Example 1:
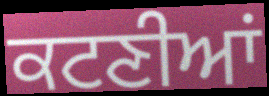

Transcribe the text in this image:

ਕਟਣੀਆਂ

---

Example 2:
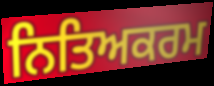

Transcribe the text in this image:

ਨਿਤਿਅਕਰਮ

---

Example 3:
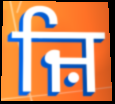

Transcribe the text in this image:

ਜ਼ਿ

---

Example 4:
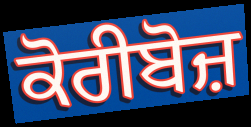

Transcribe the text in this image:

ਕੋਰੀਬੋਜ਼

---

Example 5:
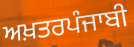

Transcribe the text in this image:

ਅਖ਼ਤਰਪੰਜਾਬੀ